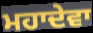
ਮਹਾਦੇਵਾ